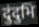
दुंदुभि